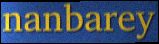
nanbarey